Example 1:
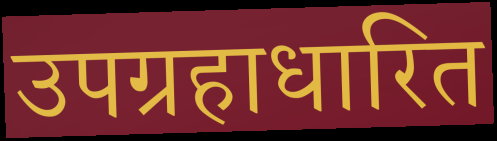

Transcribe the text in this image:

उपग्रहाधारित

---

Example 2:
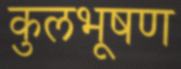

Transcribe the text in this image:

कुलभूषण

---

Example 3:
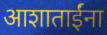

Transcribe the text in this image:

आशाताईंना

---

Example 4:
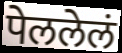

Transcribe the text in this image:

पेललेलं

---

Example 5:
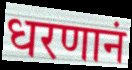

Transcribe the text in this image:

धरणानं